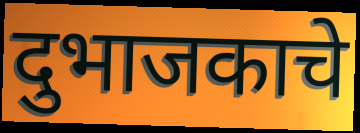
दुभाजकाचे